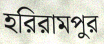
হরিরামপুর